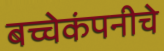
बच्चेकंपनीचे